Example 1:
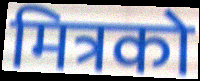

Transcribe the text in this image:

मित्रको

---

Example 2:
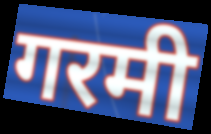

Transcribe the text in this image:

गरमी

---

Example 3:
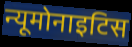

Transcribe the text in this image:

न्यूमोनाइटिस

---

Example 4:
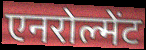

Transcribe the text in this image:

एनरोल्मेंट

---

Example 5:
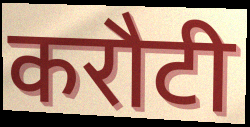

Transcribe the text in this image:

करौटी